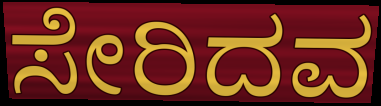
ಸೇರಿದವ